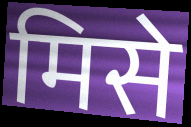
मिसे